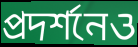
প্রদর্শনেও